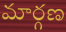
మార్గణ